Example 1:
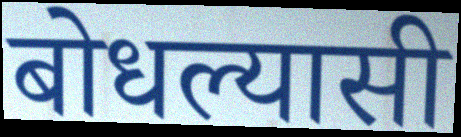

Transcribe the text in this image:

बोधल्यासी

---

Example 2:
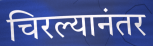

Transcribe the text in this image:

चिरल्यानंतर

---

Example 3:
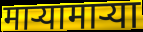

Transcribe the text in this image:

माऱ्यामाऱ्या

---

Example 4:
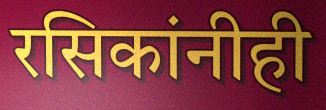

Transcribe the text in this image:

रसिकांनीही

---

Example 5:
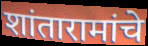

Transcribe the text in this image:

शांतारामांचे